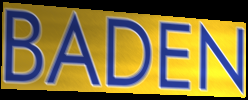
BADEN